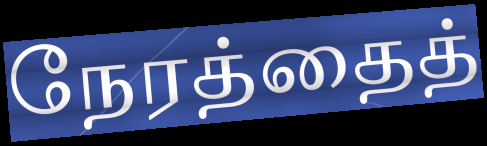
நேரத்தைத்